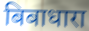
बिबाधारा